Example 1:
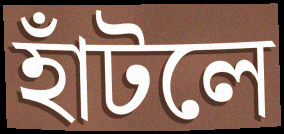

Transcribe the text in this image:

হাঁটলে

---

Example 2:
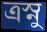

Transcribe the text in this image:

ত্রস্নু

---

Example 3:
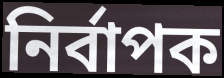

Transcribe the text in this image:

নির্বাপক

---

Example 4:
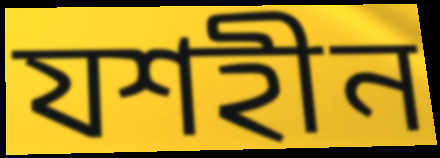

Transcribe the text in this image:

যশহীন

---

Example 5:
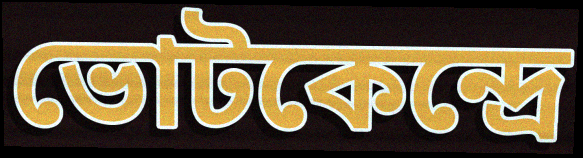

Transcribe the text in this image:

ভোটকেন্দ্রে